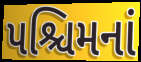
પશ્ચિમનાં